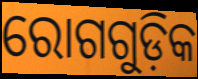
ରୋଗଗୁଡ଼ିକ